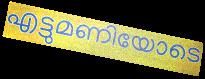
എട്ടുമണിയോടെ